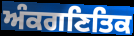
ਅੰਕਗਣਿਤਿਕ